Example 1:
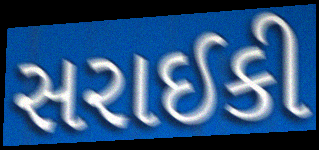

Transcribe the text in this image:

સરાઈકી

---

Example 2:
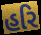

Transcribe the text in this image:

હરિ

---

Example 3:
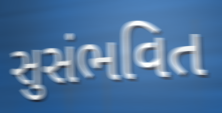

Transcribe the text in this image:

સુસંભવિત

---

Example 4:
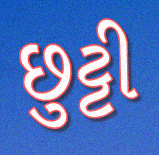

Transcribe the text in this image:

છુટ્ટી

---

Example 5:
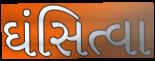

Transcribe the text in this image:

ઘંસિત્વા